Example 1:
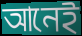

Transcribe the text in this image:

আনেই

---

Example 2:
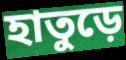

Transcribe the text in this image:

হাতুড়ে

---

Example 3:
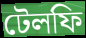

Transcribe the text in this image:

টেলফি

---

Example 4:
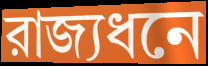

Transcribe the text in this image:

রাজ্যধনে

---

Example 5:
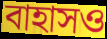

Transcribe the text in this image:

বাহাসও